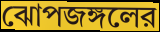
ঝোপজঙ্গলের